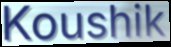
Koushik